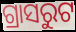
ଗ୍ରାସରୁଟ